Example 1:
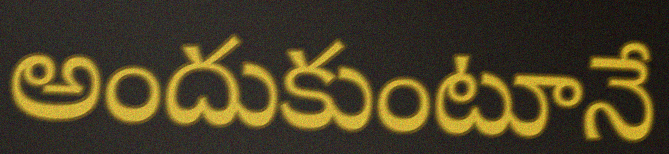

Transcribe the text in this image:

అందుకుంటూనే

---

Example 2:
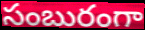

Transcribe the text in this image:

సంబురంగా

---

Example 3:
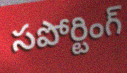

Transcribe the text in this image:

సపోర్టింగ్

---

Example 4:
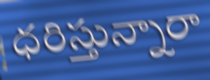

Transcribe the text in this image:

ధరిస్తున్నారా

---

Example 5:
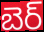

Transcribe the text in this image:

బెర్